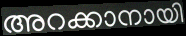
അറക്കാനായി